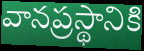
వానప్రస్థానికి